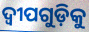
ଦ୍ୱୀପଗୁଡ଼ିକୁ